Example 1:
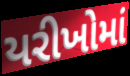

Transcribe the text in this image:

યરીખોમાં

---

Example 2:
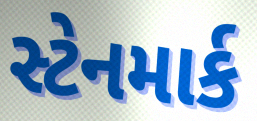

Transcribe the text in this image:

સ્ટેનમાર્ક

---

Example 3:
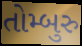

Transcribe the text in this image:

તોમ્બુરુ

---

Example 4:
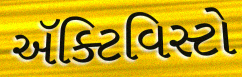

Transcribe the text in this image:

ઍક્ટિવિસ્ટો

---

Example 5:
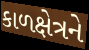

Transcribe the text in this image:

કાળક્ષેત્રને